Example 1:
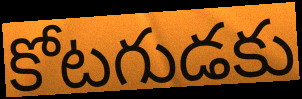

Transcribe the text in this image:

కోటగుడకు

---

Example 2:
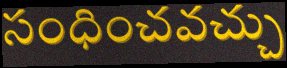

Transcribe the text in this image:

సంధించవచ్చు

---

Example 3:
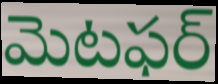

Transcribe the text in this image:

మెటఫర్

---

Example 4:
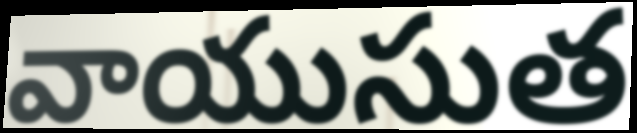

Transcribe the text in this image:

వాయుసుత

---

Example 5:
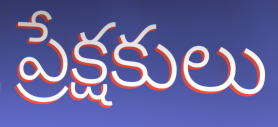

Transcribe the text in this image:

ప్రేక్షకులు